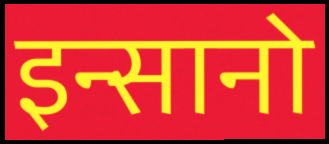
इन्सानो